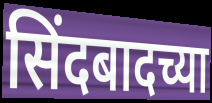
सिंदबादच्या